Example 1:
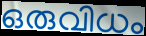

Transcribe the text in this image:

ഒരുവിധം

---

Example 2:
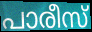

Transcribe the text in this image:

പാരീസ്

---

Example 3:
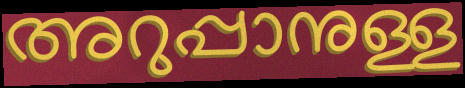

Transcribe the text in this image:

അറുപ്പാനുള്ള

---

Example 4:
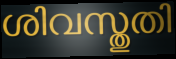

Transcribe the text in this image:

ശിവസ്തുതി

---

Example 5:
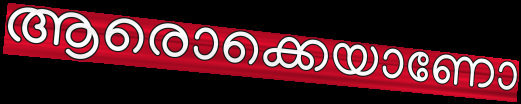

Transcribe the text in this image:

ആരൊക്കെയാണോ